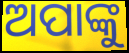
ଅପାଙ୍କୁ